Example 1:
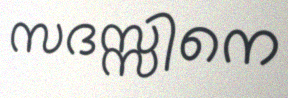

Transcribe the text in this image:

സദസ്സിനെ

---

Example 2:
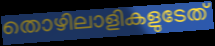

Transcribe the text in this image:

തൊഴിലാളികളുടേത്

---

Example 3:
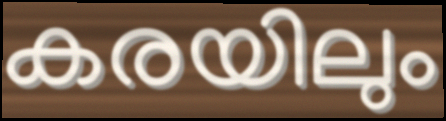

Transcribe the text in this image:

കരയിലും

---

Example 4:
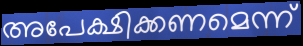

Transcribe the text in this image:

അപേക്ഷിക്കണമെന്ന്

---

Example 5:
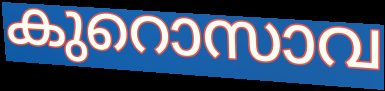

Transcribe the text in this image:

കുറൊസാവ